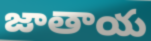
జాతాయ